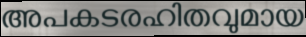
അപകടരഹിതവുമായ